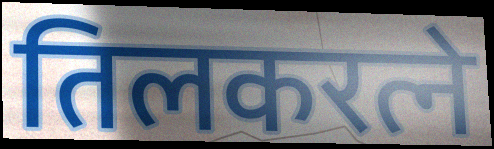
तिलकरत्ने